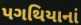
પગથિયાનાં